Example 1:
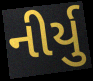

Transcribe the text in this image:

નીર્યુ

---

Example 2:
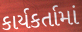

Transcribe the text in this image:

કાર્યકર્તામાં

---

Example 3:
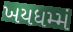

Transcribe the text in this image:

ખયધમ્મં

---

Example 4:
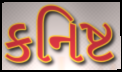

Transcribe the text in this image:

કનિષ્ટ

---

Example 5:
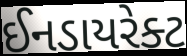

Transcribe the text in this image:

ઈનડાયરેક્ટ